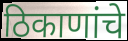
ठिकाणांचे